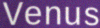
Venus